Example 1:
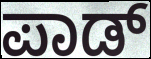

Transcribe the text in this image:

ಪಾಡ್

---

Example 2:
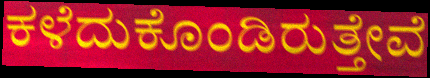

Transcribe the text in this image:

ಕಳೆದುಕೊಂಡಿರುತ್ತೇವೆ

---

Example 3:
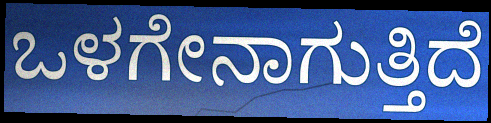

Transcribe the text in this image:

ಒಳಗೇನಾಗುತ್ತಿದೆ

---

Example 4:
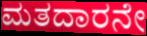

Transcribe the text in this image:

ಮತದಾರನೇ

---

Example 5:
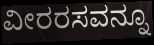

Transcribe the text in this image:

ವೀರರಸವನ್ನೂ